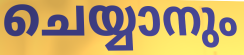
ചെയ്യാനും